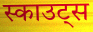
स्काउट्स